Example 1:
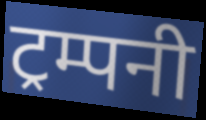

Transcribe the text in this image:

ट्रम्पनी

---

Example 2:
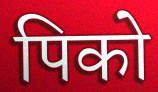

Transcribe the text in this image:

पिको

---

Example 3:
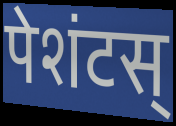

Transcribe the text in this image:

पेशंटस्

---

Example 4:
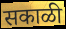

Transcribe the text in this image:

सकाळी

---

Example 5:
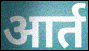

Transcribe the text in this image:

आर्त